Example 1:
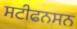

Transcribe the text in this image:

ਸਟੀਫਨਸਨ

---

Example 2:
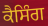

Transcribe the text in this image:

ਕੈਸਿੰਗ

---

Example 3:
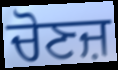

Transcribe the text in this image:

ਚੋਣਜ਼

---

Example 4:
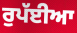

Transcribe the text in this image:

ਰੁਪੱਈਆ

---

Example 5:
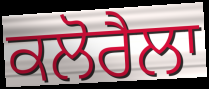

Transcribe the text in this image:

ਕਲੋਰੈਲਾ